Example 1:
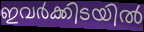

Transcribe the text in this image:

ഇവർക്കിടയിൽ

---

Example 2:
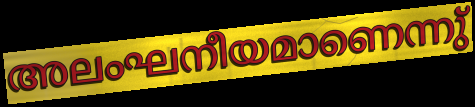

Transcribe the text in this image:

അലംഘനീയമാണെന്നു്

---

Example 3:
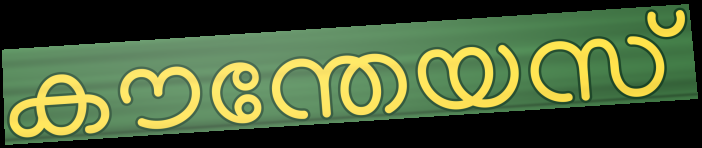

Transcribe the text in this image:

കൗന്തേയസ്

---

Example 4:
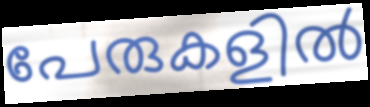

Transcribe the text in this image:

പേരുകളിൽ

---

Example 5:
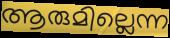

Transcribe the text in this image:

ആരുമില്ലെന്ന